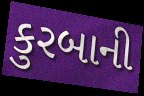
કુરબાની